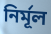
নির্মূল